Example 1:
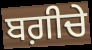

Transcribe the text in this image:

ਬਗ਼ੀਚੇ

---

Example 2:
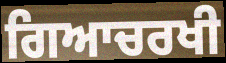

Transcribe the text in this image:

ਗਿਆਚਰਖੀ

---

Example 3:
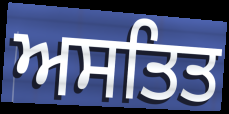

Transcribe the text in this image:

ਅਸਤਿਤ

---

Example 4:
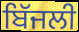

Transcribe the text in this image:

ਬਿੱਜਲੀ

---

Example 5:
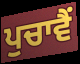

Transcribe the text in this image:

ਪੁਚਾਵੈਂ